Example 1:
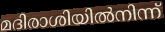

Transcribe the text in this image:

മദിരാശിയിൽനിന്ന്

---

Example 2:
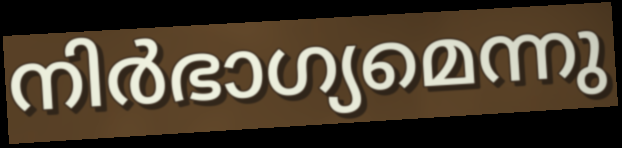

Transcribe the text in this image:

നിർഭാഗ്യമെന്നു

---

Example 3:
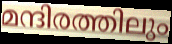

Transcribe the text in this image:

മന്ദിരത്തിലും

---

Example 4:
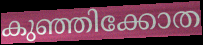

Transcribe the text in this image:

കുഞ്ഞിക്കോത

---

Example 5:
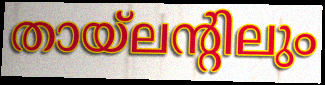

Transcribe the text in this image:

തായ്ലന്റിലും